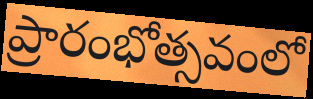
ప్రారంభోత్సవంలో